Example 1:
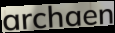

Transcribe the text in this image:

archaen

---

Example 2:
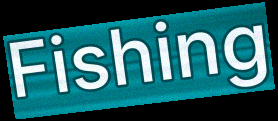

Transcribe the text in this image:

Fishing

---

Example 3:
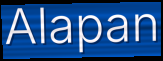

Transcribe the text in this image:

Alapan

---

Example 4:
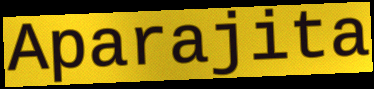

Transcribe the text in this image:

Aparajita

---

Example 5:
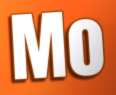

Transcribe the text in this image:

Mo